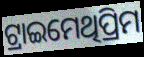
ଟ୍ରାଇମେଥିପ୍ରିମ